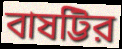
বাষট্টির